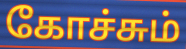
கோச்சும்